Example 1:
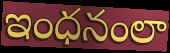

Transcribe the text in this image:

ఇంధనంలా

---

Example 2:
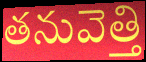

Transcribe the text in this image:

తనువెత్తి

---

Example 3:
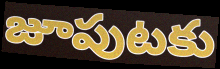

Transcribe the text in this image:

జూపుటకు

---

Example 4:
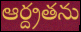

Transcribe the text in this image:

ఆర్ద్రతను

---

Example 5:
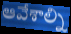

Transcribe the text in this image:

ఆవేశాల్ని